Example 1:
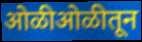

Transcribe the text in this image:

ओळीओळीतून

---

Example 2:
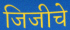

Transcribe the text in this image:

जिजीचे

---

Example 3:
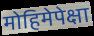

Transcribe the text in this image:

मोहिमेपेक्षा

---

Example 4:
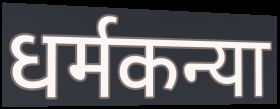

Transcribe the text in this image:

धर्मकन्या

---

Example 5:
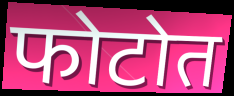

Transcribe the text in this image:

फोटोत